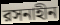
রসনাহীন